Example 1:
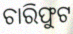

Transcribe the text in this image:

ଚାରିଫୁଟ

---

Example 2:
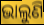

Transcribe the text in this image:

ଭାଲୁଣି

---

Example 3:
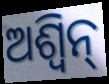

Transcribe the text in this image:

ଅଶ୍ବିନ୍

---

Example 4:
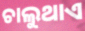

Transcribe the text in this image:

ଚାଲୁଥାଏ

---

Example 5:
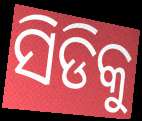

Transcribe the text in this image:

ସିଡିକୁ